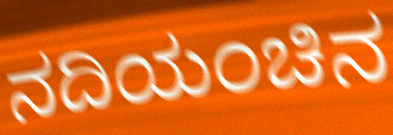
ನದಿಯಂಚಿನ